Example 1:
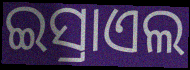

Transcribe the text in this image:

ଇସ୍ରାଏଲ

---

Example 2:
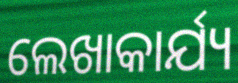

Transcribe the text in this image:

ଲେଖାକାର୍ଯ୍ୟ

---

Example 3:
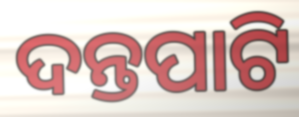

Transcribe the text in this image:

ଦନ୍ତପାଟି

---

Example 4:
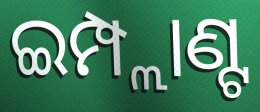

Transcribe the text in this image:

ଇମ୍ପ୍ଲାଣ୍ଟ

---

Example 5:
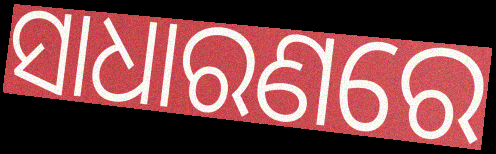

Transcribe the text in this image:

ସାଧାରଣରେ